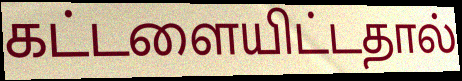
கட்டளையிட்டதால்